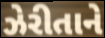
ઝેરીતાને